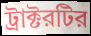
ট্রাক্টরটির